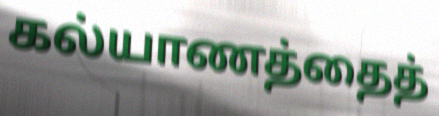
கல்யாணத்தைத்